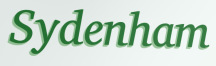
Sydenham